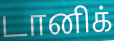
டானிக்